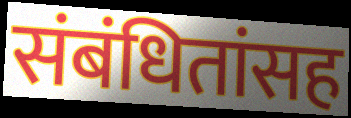
संबंधितांसह